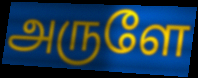
அருளே